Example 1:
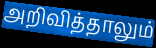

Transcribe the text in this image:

அறிவித்தாலும்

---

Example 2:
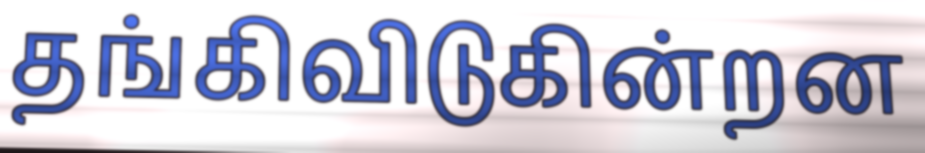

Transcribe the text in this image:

தங்கிவிடுகின்றன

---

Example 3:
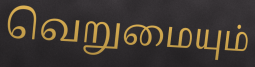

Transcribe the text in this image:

வெறுமையும்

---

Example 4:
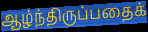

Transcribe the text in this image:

ஆழ்ந்திருப்பதைக்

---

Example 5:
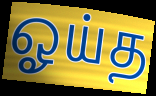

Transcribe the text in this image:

ஓய்த